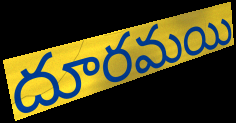
దూరమయి